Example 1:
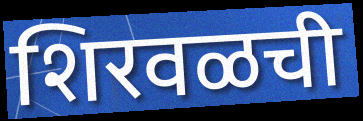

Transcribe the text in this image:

शिरवळची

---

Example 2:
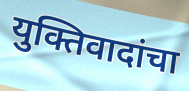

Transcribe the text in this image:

युक्तिवादांचा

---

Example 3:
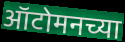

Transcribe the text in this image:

ऑटोमनच्या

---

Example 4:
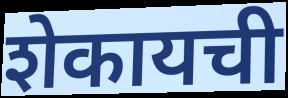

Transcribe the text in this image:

शेकायची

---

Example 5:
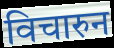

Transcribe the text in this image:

विचारुन